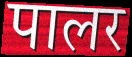
पालर